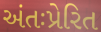
અંતઃપ્રેરિત